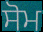
ਸੋਮ